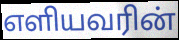
எளியவரின்